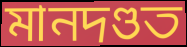
মানদণ্ডত